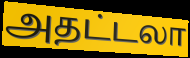
அதட்டலா